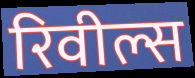
रिवील्स